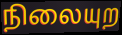
நிலையுற